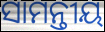
ସାମନ୍ତୀୟ